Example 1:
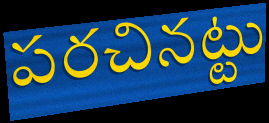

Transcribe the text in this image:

పరచినట్టు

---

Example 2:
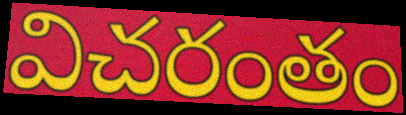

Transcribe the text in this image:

విచరంతం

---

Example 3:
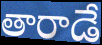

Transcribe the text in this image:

తారాడే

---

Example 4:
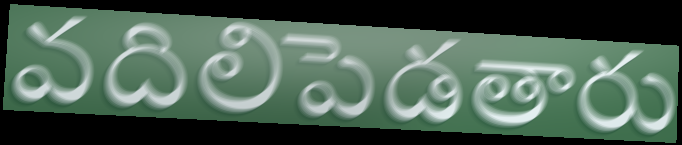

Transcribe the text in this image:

వదిలిపెడతారు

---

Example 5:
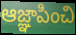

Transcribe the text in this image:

ఆజ్ఞాపించి